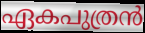
ഏകപുത്രൻ